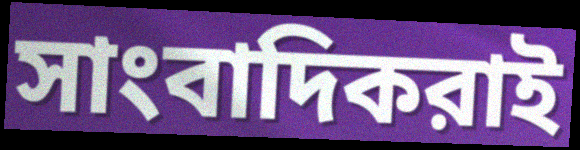
সাংবাদিকরাই